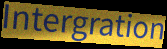
Intergration